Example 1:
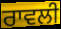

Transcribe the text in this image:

ਰਾਵਲੀ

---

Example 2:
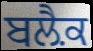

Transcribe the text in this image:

ਬਲ਼ੈਕ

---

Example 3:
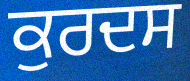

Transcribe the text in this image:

ਕੁਰਦਸ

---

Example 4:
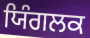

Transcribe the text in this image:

ਯਿੰਗਲਕ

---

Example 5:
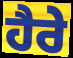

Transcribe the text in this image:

ਹੈਰੇ